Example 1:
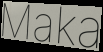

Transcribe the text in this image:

Maka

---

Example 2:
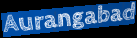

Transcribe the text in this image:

Aurangabad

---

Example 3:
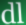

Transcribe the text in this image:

dl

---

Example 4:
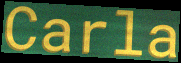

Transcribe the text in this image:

Carla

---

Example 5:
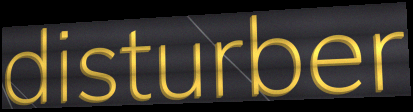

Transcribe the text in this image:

disturber